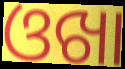
ଓଖା